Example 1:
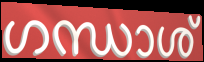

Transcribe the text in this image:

ഗന്ധാശ്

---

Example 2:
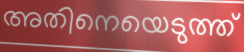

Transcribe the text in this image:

അതിനെയെടുത്ത്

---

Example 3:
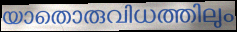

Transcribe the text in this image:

യാതൊരുവിധത്തിലും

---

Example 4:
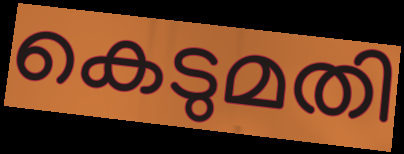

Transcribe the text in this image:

കെടുമതി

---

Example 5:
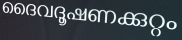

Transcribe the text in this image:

ദൈവദൂഷണക്കുറ്റം